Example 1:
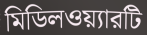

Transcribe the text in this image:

মিডিলওয়্যারটি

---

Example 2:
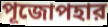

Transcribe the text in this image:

পূজোপহার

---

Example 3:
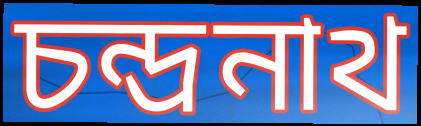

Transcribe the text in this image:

চন্দ্রনাথ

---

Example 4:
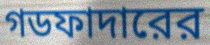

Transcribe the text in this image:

গডফাদারের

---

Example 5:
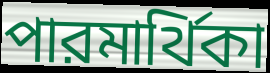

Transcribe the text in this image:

পারমার্থিকা